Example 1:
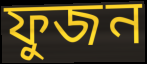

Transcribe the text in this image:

ফুজন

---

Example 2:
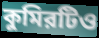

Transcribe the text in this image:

কুমিরটিও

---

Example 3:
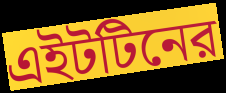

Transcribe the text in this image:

এইটটিনের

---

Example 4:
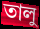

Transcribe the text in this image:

তালু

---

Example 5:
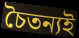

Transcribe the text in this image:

চৈতন্যই